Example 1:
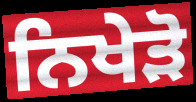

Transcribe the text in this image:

ਨਿਖੇੜੋ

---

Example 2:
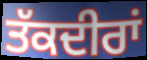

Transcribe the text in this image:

ਤੱਕਦੀਰਾਂ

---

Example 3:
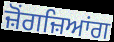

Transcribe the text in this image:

ਜ਼ੋਂਗਜ਼ਿਆਂਗ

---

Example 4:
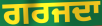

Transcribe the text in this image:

ਗਰਜਦਾ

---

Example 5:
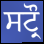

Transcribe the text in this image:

ਸਟ੍ਰੌ